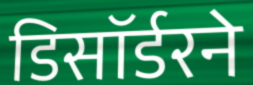
डिसॉर्डरने